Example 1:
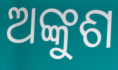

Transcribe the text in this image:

ଅଙ୍କୁଶ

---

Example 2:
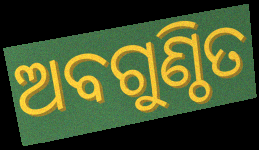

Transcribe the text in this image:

ଅବଗୁଣ୍ଠିତ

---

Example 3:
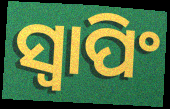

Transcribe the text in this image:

ସ୍ବାପିଂ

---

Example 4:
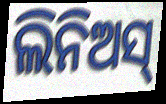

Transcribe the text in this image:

ଲିନିଅସ୍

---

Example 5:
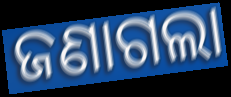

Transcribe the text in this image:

ଜଣାଗଲା